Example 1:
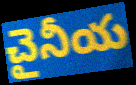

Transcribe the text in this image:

చైనీయ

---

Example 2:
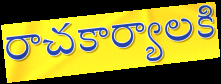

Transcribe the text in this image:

రాచకార్యాలకి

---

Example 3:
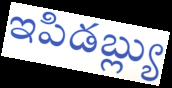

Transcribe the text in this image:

ఇపిడబ్ల్యు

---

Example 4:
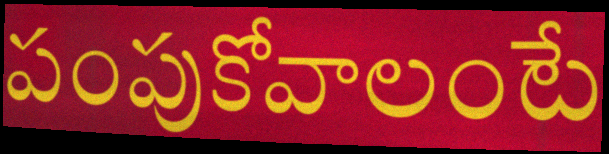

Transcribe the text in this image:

పంపుకోవాలంటే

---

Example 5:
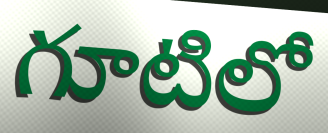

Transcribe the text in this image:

గూటిలో